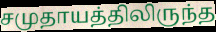
சமுதாயத்திலிருந்த